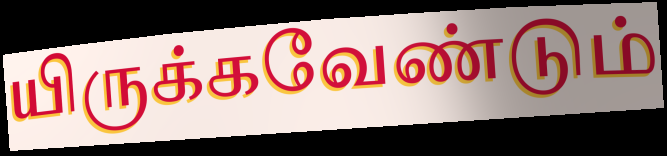
யிருக்கவேண்டும்